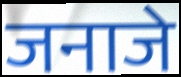
जनाजे